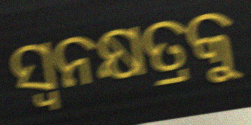
ସ୍ୱନକ୍ଷତ୍ରକୁ